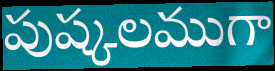
పుష్కలముగా